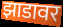
झाडावर